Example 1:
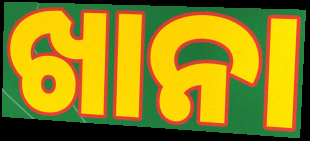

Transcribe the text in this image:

ଖାନା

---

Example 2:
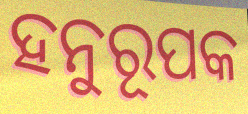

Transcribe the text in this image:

ହନୁରୂପକ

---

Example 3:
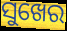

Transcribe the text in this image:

ସୁଖେର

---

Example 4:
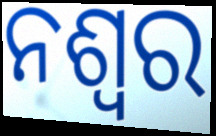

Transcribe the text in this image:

ନଶ୍ଵର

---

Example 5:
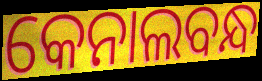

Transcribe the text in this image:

କେନାଲବନ୍ଧ